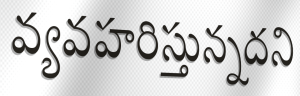
వ్యవహరిస్తున్నదని